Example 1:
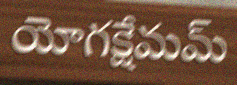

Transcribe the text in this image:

యోగక్షేమమ్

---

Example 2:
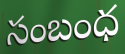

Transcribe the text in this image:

సంబంధ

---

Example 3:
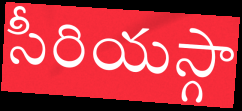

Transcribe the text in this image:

సీరియస్గా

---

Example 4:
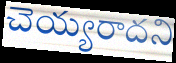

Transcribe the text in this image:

చెయ్యరాదని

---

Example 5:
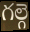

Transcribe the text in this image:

గల్గె